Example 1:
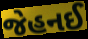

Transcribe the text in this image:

જેહનઈ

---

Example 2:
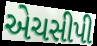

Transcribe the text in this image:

એચસીપી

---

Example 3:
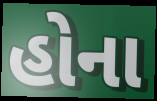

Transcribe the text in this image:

હોના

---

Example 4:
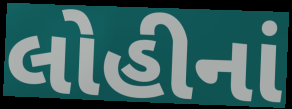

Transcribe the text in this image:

લોહીનાં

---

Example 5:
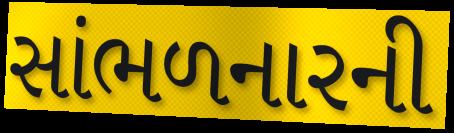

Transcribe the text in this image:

સાંભળનારની